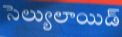
సెల్యులాయిడ్